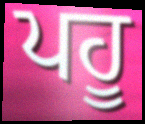
ਪਹੂ